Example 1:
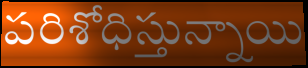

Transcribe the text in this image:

పరిశోధిస్తున్నాయి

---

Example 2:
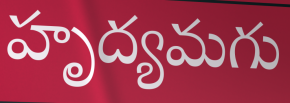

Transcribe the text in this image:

హృద్యమగు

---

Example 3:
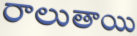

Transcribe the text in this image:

రాలుతాయి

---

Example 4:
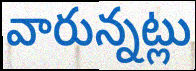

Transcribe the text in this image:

వారున్నట్లు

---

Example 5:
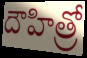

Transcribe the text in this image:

దౌహిత్రో